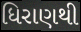
ધિરાણથી